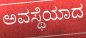
ಅವಸ್ಥೆಯಾದ